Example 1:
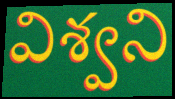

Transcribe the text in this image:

విశ్వని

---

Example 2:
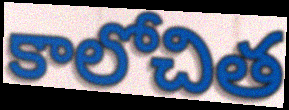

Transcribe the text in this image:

కాలోచిత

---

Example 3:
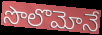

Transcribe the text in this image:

సొలొమోనే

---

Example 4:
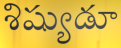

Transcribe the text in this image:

శిష్యుడూ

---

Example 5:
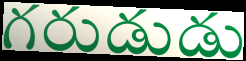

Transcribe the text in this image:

గరుడుడు